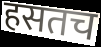
हसतच